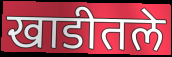
खाडीतले